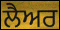
ਲੈਅਰ